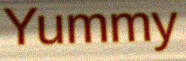
Yummy